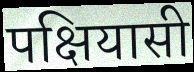
पक्षियासी